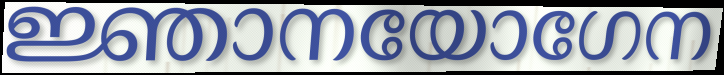
ജ്ഞാനയോഗേന